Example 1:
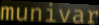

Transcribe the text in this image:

munivar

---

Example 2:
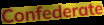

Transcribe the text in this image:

Confederate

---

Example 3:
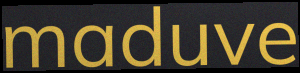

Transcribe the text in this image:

maduve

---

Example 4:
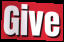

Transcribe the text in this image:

Give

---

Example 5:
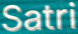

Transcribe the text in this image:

Satri